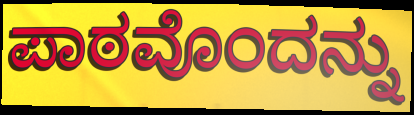
ಪಾಠವೊಂದನ್ನು